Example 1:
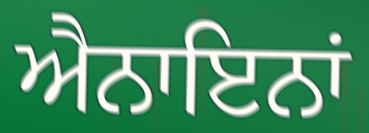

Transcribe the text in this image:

ਐਨਾਇਨਾਂ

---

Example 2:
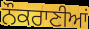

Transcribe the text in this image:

ਨੌਕਰਾਣੀਆਂ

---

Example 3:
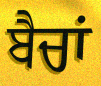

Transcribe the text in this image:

ਬੈਚਾਂ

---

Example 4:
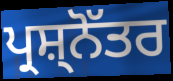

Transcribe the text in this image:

ਪ੍ਰਸ਼੍ਨੋੱਤਰ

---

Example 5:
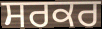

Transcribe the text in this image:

ਸਰਕਰ